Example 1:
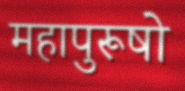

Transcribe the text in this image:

महापुरूषो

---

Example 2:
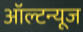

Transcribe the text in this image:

ऑल्टन्यूज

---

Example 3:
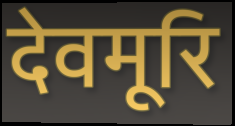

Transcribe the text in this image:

देवमूरि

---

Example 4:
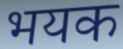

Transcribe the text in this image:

भयक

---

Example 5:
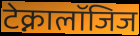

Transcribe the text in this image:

टेक्नालॉजिज